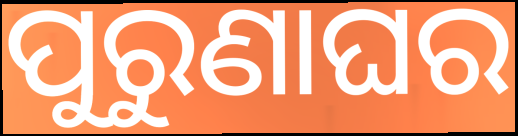
ପୁରୁଣାଘର